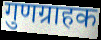
गुणग्राहक